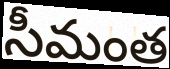
సీమంత